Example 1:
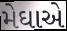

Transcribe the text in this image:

મેઘાએ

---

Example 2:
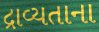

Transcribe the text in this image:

દ્રાવ્યતાના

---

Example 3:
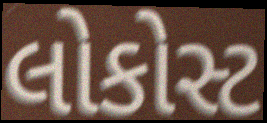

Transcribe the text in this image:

લોકોસ્ટ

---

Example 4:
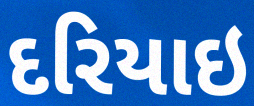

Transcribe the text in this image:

દરિયાઇ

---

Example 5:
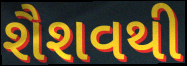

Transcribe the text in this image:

શૈશવથી